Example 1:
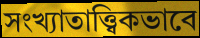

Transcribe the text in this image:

সংখ্যাতাত্ত্বিকভাবে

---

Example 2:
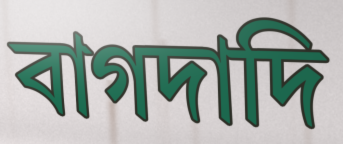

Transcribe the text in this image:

বাগদাদি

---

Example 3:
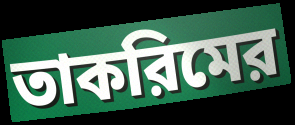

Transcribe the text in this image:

তাকরিমের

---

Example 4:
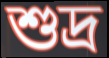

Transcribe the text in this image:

শুদ্র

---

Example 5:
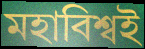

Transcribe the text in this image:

মহাবিশ্বই